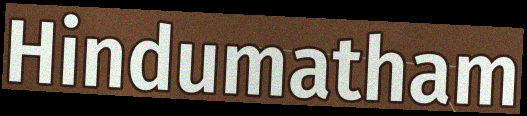
Hindumatham